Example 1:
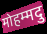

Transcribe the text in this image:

मोहम्मदु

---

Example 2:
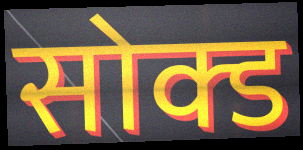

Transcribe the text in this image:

सोक्ड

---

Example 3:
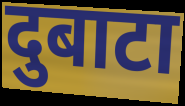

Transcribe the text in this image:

दुबाटा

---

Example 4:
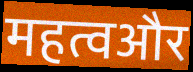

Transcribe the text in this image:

महत्वऔर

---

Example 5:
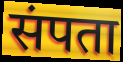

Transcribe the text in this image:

संपता